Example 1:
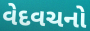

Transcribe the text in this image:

વેદવચનો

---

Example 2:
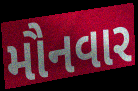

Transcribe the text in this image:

મૌનવાર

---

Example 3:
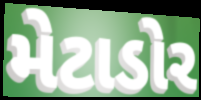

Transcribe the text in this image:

મેટાડોર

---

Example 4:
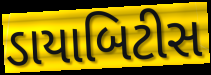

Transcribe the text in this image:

ડાયાબિટીસ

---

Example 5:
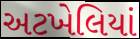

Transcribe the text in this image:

અટખેલિયાં